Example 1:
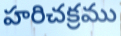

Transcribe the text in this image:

హరిచక్రము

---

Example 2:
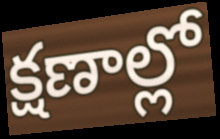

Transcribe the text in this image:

క్షణాల్లో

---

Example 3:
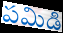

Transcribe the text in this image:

పమిడి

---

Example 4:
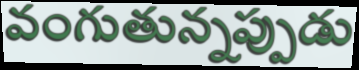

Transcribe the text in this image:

వంగుతున్నప్పుడు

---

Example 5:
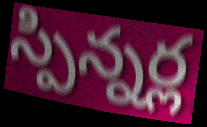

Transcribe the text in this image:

స్పిన్నర్ల